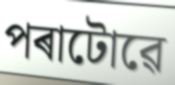
পৰাটোৱে